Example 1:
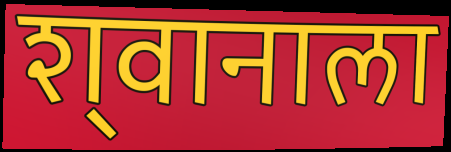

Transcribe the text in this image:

श्वानाला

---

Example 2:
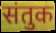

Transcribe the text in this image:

संतुक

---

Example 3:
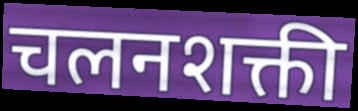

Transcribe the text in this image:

चलनशक्ती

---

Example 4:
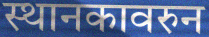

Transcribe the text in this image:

स्थानकावरुन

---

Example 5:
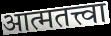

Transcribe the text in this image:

आत्मतत्त्वा